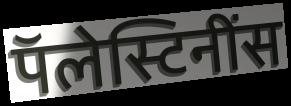
पॅलेस्टिनींस